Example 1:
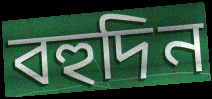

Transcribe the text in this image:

বহুদিন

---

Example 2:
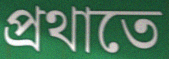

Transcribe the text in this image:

প্ৰথাতে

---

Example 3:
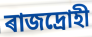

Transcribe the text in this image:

ৰাজদ্ৰোহী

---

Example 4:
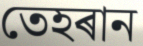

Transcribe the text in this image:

তেহৰান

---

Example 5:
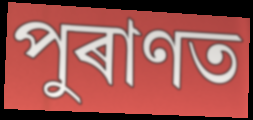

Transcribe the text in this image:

পুৰাণত